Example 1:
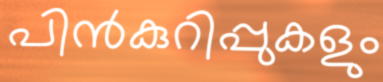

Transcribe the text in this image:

പിൻകുറിപ്പുകളും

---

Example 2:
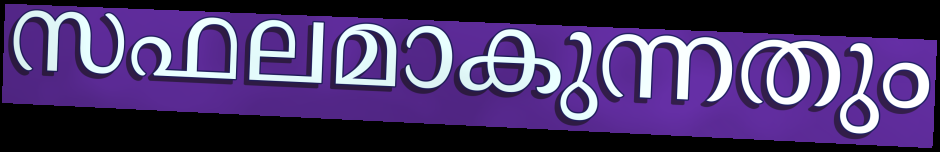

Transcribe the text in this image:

സഫലമാകുന്നതും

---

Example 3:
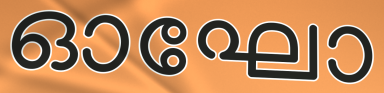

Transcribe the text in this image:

ഓഘോ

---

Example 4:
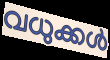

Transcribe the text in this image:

വധുക്കൾ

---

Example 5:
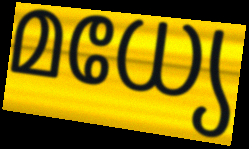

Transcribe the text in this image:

മധ്യേ